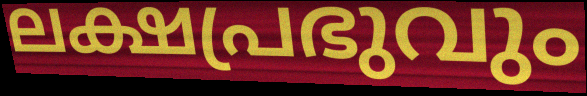
ലക്ഷപ്രഭുവും